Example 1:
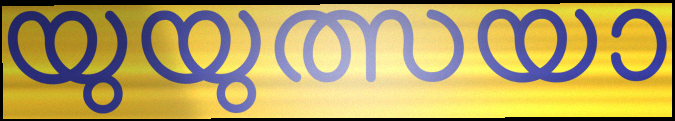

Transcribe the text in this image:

യുയുത്സയാ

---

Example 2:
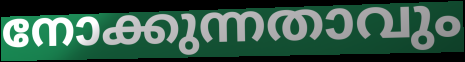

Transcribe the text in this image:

നോക്കുന്നതാവും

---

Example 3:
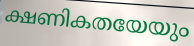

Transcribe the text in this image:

ക്ഷണികതയേയും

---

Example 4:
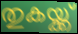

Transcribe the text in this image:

തുകയ്ക്ക്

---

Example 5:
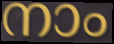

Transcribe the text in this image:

നാം